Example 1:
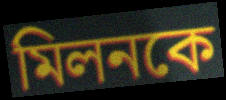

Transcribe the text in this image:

মিলনকে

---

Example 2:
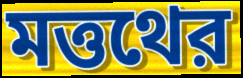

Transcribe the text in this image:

মত্তথের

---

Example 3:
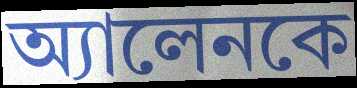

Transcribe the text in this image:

অ্যালেনকে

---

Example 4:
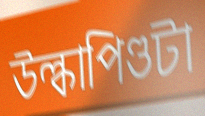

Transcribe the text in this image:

উল্কাপিণ্ডটা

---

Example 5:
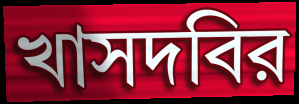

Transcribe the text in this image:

খাসদবির